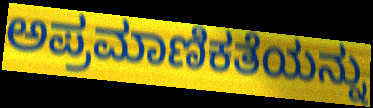
ಅಪ್ರಮಾಣಿಕತೆಯನ್ನು